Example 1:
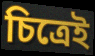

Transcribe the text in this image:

চিত্রেই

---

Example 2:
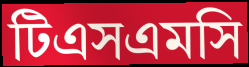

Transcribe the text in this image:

টিএসএমসি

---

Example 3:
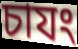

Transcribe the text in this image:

চাযং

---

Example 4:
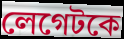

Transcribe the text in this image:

লেগেটকে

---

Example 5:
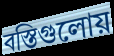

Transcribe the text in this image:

বস্তিগুলোয়